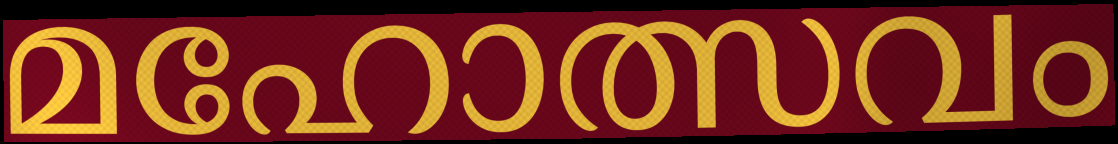
മഹോത്സവം